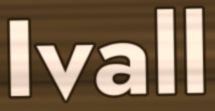
Ivall